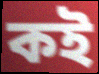
কই